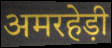
अमरहेड़ी